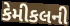
કેમીકલની